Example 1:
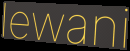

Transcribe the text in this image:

lewani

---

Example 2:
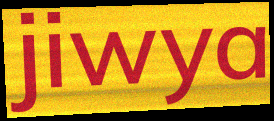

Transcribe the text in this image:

jiwya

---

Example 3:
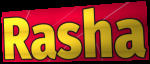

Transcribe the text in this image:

Rasha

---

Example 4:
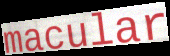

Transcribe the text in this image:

macular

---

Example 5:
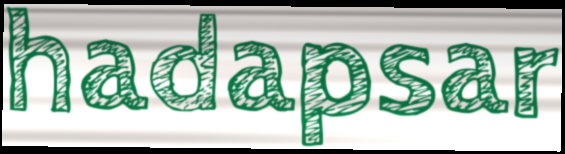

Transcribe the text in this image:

hadapsar